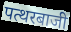
पत्थरबाजी